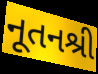
નૂતનશ્રી